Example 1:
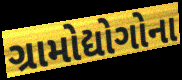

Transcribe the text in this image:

ગ્રામોદ્યોગોના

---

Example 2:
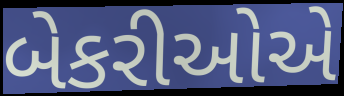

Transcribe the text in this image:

બેકરીઓએ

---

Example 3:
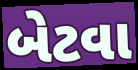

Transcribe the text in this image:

બેટવા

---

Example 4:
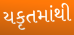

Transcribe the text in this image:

યકૃતમાંથી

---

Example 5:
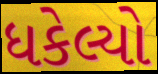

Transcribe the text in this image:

ધકેલ્યો